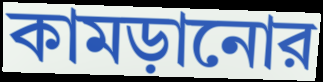
কামড়ানোর